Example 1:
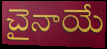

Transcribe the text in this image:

చైనాయే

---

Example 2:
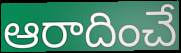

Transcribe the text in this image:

ఆరాదించే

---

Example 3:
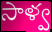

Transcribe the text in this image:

సాళ్వ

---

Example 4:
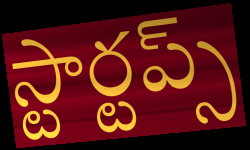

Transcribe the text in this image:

స్టార్టప్స్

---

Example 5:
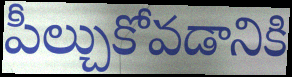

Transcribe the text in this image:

పీల్చుకోవడానికి